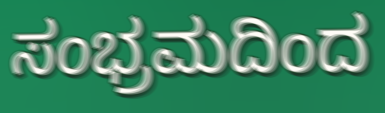
ಸಂಭ್ರಮದಿಂದ